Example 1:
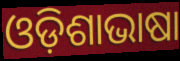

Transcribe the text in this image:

ଓଡ଼ିଶାଭାଷା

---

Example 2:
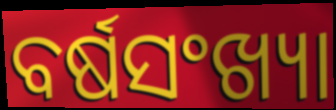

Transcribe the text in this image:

ବର୍ଷସଂଖ୍ୟା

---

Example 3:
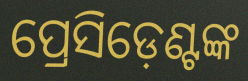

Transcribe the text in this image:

ପ୍ରେସିଡ଼େଣ୍ଟଙ୍କ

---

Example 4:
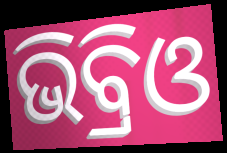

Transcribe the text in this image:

ଭିବ୍ରିଓ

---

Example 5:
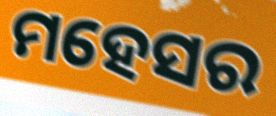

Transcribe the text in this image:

ମହେସର